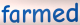
farmed